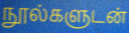
நூல்களுடன்